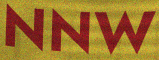
NNW